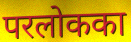
परलोकका